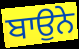
ਬਾਉਨੇ